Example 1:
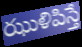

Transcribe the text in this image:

ఝుళిపిస్తే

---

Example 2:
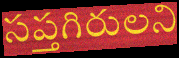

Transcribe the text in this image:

సప్తగిరులని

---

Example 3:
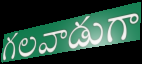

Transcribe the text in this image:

గలవాడుగా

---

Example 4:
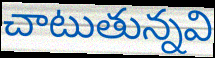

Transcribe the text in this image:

చాటుతున్నవి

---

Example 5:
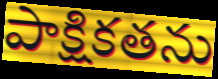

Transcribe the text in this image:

పాక్షికతను